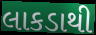
લાકડાથી